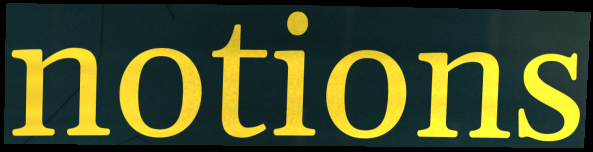
notions